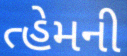
ત્હેમની